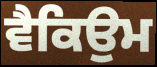
ਵੈਕਿਉਮ